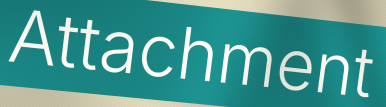
Attachment